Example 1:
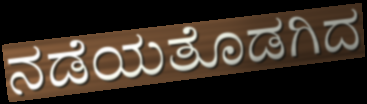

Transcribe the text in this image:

ನಡೆಯತೊಡಗಿದ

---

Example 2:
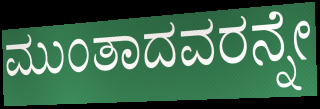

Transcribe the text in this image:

ಮುಂತಾದವರನ್ನೇ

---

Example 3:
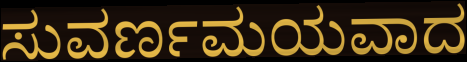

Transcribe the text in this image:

ಸುವರ್ಣಮಯವಾದ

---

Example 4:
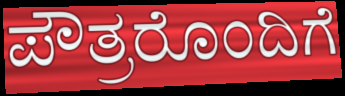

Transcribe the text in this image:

ಪೌತ್ರರೊಂದಿಗೆ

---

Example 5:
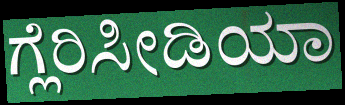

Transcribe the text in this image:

ಗ್ಲೆರಿಸೀಡಿಯಾ